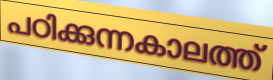
പഠിക്കുന്നകാലത്ത്